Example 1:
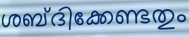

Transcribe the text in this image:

ശബ്ദിക്കേണ്ടതും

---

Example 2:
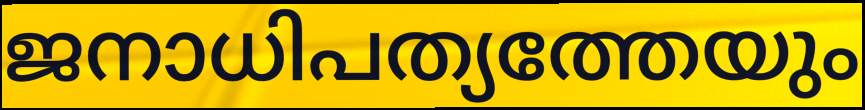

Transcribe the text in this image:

ജനാധിപത്യത്തേയും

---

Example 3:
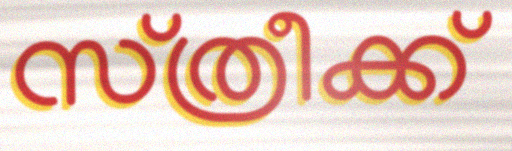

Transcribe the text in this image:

സ്‌ത്രീക്ക്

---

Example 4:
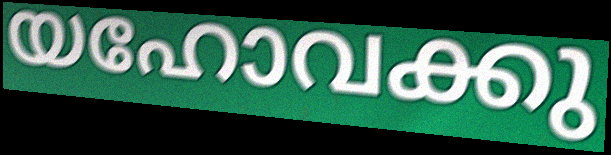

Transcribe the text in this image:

യഹോവക്കു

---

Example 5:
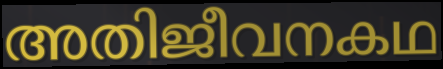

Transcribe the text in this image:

അതിജീവനകഥ